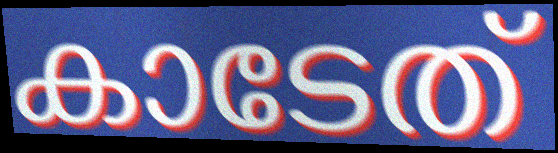
കാടേത്